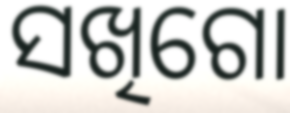
ସଖିଗୋ